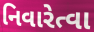
નિવારેત્વા